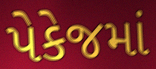
પેકેજમાં